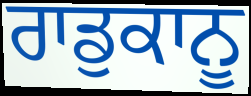
ਰਾਡੁਕਾਨੂ